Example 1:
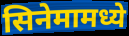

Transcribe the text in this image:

सिनेमामध्ये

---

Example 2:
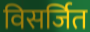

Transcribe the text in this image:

विसर्जित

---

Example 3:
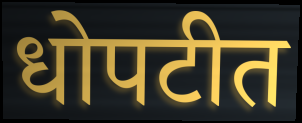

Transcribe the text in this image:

धोपटीत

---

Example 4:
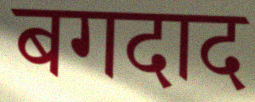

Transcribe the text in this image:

बगदाद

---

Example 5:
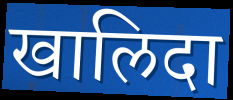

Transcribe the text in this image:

खालिदा